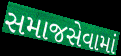
સમાજસેવામાં